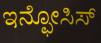
ಇನ್ಫೋಸಿಸ್